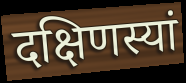
दक्षिणस्यां